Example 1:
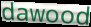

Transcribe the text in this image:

dawood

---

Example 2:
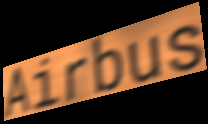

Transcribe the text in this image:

Airbus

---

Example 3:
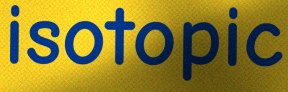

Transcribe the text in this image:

isotopic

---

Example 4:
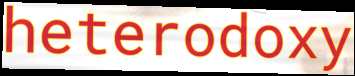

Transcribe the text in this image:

heterodoxy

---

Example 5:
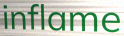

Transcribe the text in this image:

inflame